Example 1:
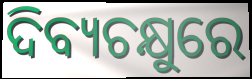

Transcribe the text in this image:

ଦିବ୍ୟଚକ୍ଷୁରେ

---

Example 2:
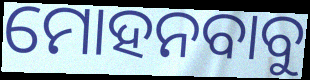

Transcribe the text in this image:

ମୋହନବାବୁ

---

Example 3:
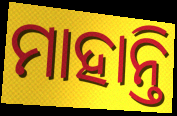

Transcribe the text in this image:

ମାହାନ୍ତି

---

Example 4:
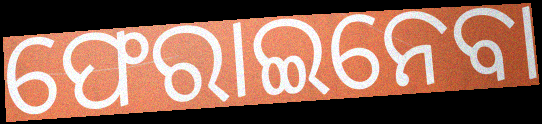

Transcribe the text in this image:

ଫେରାଇନେବା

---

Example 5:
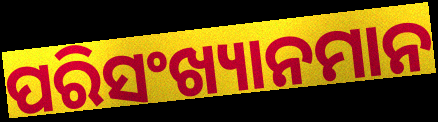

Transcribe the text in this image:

ପରିସଂଖ୍ୟାନମାନ